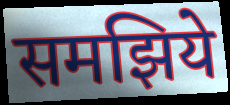
समझिये